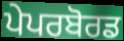
ਪੇਪਰਬੋਰਡ